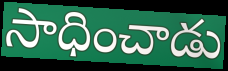
సాధించాడు